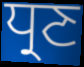
ਧ੍ਰਣ